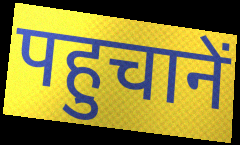
पहुचानें